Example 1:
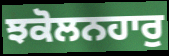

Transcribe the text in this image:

ਝਕੋਲਨਹਾਰੁ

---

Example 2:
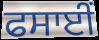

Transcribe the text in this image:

ਫਸਾਈਂ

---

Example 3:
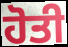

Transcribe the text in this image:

ਹੋਤੀ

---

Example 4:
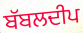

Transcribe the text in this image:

ਬੱਬਲਦੀਪ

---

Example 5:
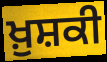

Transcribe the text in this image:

ਖ਼ੁਸ਼ਕੀ